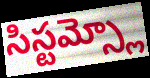
సిస్టమ్స్లో